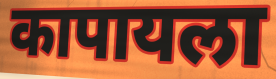
कापायला